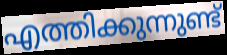
എത്തിക്കുന്നുണ്ട്